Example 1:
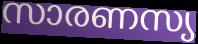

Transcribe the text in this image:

സാരണസ്യ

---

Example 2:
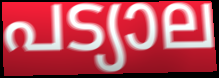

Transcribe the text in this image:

പട്യാല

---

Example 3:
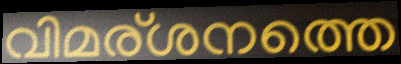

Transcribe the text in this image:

വിമര്ശനത്തെ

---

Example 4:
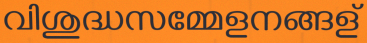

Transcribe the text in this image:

വിശുദ്ധസമ്മേളനങ്ങള്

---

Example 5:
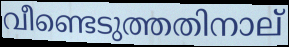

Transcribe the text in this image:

വീണ്ടെടുത്തതിനാല്